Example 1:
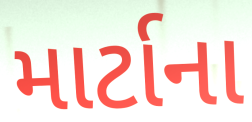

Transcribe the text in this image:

માર્ટાના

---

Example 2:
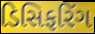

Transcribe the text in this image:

ડિસિફરિંગ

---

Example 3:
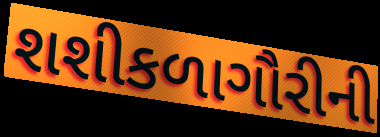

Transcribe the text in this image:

શશીકળાગૌરીની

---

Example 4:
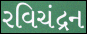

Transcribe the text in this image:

રવિચંદ્રન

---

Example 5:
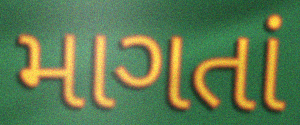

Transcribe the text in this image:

માગતાં